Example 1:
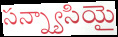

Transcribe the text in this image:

సన్న్యాసియై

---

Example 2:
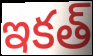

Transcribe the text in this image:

ఇకత్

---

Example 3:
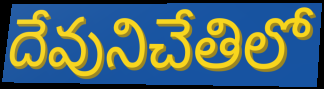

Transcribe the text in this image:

దేవునిచేతిలో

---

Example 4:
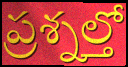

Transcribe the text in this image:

ప్రశ్నల్తో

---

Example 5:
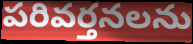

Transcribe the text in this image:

పరివర్తనలను